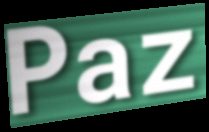
Paz